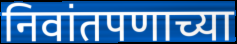
निवांतपणाच्या